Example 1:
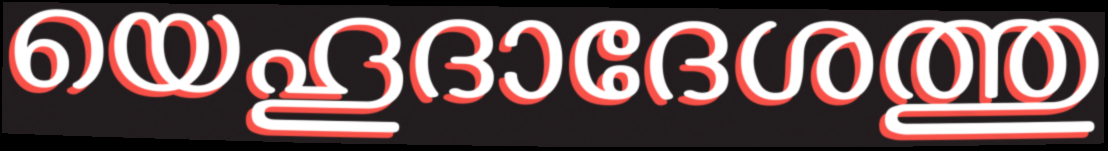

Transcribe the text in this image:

യെഹൂദാദേശത്തു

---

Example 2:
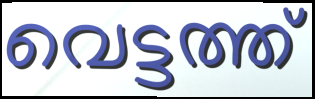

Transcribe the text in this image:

വെട്ടത്ത്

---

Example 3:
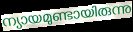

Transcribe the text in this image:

ന്യായമുണ്ടായിരുന്നു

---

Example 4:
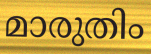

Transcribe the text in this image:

മാരുതിം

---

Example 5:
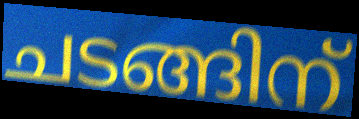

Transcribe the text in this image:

ചടങ്ങിന്